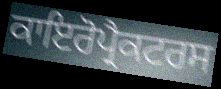
ਕਾਇਰੋਪ੍ਰੈਕਟਰਸ